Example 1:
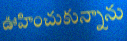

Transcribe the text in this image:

ఊహించుకున్నాను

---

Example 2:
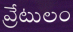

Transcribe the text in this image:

వ్రేటులం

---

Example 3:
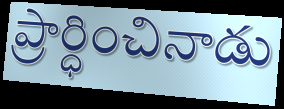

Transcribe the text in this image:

ప్రార్ధించినాడు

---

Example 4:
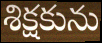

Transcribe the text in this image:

శిక్షకును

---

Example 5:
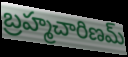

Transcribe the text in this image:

బ్రహ్మచారిణమ్